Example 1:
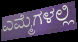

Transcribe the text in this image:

ಎಮ್ಮೆಗಳಲ್ಲಿ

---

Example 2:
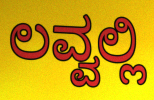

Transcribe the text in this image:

ಲವ್ವಲ್ಲಿ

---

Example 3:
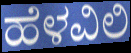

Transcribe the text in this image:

ಹೆಳವಿಲಿ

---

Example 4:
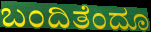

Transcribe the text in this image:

ಬಂದಿತೆಂದೂ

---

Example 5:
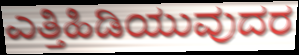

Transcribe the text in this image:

ಎತ್ತಿಹಿಡಿಯುವುದರ